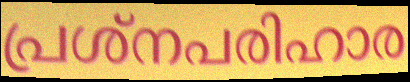
പ്രശ്നപരിഹാര